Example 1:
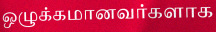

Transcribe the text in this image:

ஒழுக்கமானவர்களாக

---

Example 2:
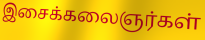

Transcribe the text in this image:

இசைக்கலைஞர்கள்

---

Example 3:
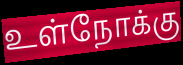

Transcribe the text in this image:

உள்நோக்கு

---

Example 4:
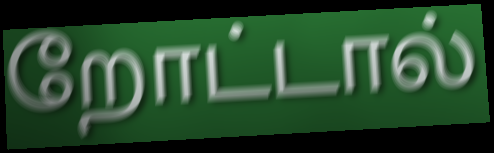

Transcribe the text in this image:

றோட்டால்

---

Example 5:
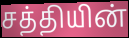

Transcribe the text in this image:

சத்தியின்